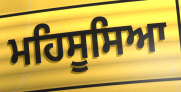
ਮਹਿਸੂਸਿਆ